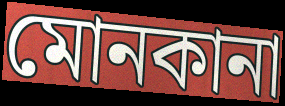
মোনকানা